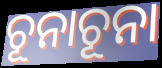
ଚୂନାଚୂନା